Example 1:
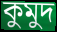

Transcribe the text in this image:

কুমুদ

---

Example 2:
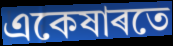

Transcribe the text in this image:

একেষাৰতে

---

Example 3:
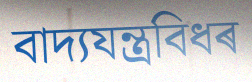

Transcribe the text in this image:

বাদ্যযন্ত্ৰবিধৰ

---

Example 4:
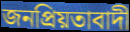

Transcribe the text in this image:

জনপ্ৰিয়তাবাদী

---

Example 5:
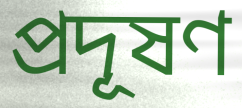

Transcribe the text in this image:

প্ৰদূষণ